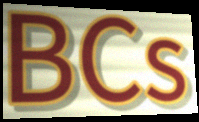
BCs